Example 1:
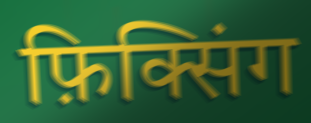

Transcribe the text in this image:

फ़िक्सिंग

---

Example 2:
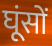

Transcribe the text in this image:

घूंसों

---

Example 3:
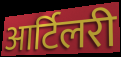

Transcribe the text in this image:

आर्टिलरी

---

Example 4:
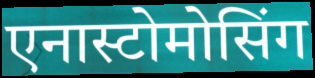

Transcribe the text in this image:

एनास्टोमोसिंग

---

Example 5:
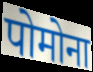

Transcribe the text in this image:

पोमोना